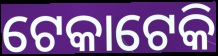
ଟେକାଟେକି